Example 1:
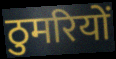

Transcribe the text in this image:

ठुमरियों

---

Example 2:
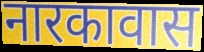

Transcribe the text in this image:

नारकावास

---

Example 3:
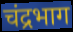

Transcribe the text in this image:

चंद्रभाग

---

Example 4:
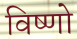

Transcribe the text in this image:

विष्णो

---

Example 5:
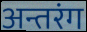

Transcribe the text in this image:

अन्तरंग